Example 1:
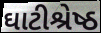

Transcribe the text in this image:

ઘાટીશ્રેષ્ઠ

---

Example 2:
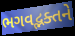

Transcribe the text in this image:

ભગવદ્ભક્તને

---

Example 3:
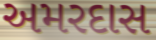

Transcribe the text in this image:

અમરદાસ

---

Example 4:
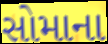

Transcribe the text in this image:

સોમાના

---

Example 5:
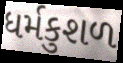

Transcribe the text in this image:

ધર્મકુશળ